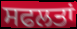
ਸਫਲਤਾਂ